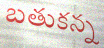
బతుకన్న